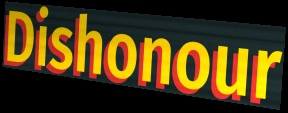
Dishonour